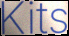
Kits